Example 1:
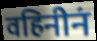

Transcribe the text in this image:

वहिनीनं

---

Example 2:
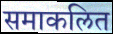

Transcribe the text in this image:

समाकलित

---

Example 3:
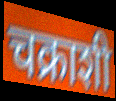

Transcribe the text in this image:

चक्राशी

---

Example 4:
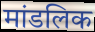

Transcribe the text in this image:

मांडलिक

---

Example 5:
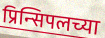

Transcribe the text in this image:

प्रिन्सिपलच्या